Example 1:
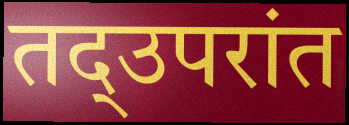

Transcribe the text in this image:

तद्उपरांत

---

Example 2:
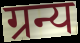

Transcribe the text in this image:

ग्रन्य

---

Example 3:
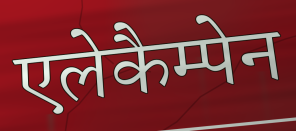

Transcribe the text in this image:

एलेकैम्पेन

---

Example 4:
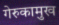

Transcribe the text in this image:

गेरुकामुख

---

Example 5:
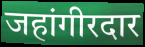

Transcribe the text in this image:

जहांगीरदार